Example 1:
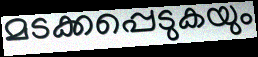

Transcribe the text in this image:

മടക്കപ്പെടുകയും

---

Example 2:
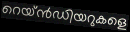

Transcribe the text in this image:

റെയ്ൻഡിയറുകളെ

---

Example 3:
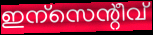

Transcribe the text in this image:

ഇന്സെന്റീവ്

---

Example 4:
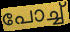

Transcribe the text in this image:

പോച്ച്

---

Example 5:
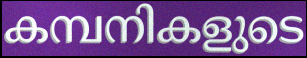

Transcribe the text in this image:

കമ്പനികളുടെ